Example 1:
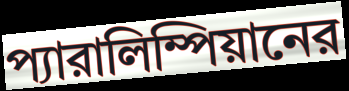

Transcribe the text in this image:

প্যারালিম্পিয়ানের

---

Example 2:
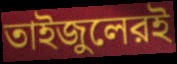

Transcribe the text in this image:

তাইজুলেরই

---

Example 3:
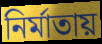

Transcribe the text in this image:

নির্মাতায়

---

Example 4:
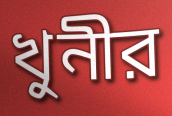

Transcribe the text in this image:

খুনীর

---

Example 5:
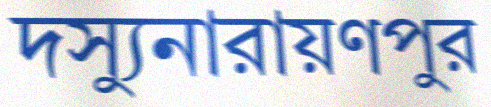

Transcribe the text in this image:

দস্যুনারায়ণপুর